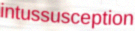
intussusception